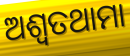
ଅଶ୍ୱତଥାମା